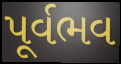
પૂર્વભવ